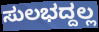
ಸುಲಭದ್ದಲ್ಲ